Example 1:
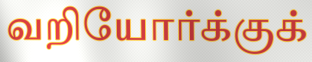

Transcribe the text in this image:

வறியோர்க்குக்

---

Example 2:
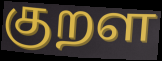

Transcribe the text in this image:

குறள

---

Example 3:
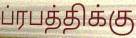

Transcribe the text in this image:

ப்ரபத்திக்கு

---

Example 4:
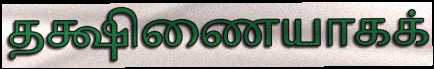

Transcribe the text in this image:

தக்ஷிணையாகக்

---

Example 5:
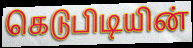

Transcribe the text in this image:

கெடுபிடியின்